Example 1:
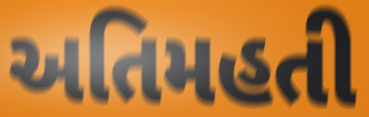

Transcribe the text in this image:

અતિમહતી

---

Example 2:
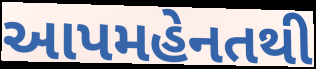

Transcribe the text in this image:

આપમહેનતથી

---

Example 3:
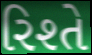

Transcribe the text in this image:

રિશ્તે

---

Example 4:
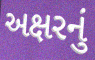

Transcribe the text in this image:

અક્ષરનું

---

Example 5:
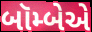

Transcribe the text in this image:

બૉમ્બેએ